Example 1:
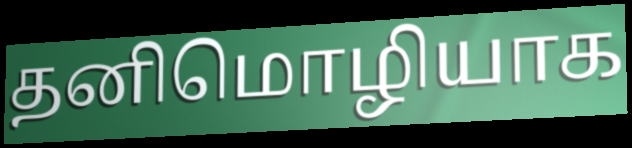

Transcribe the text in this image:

தனிமொழியாக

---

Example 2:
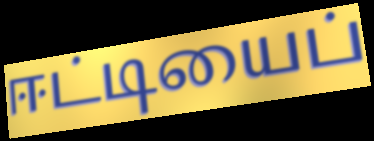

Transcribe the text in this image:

ஈட்டியைப்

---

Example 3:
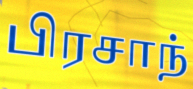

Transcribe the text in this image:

பிரசாந்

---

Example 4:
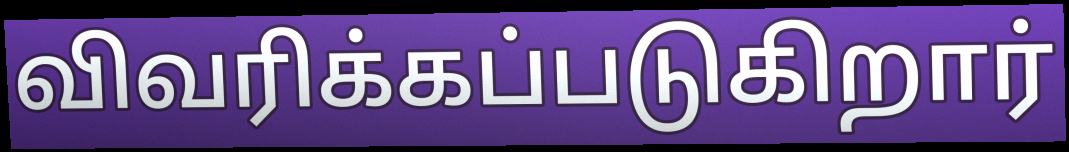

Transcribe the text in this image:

விவரிக்கப்படுகிறார்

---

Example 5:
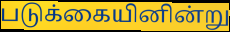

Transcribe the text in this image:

படுக்கையினின்று